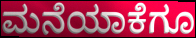
ಮನೆಯಾಕೆಗೂ